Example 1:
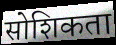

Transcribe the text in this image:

सोशिकता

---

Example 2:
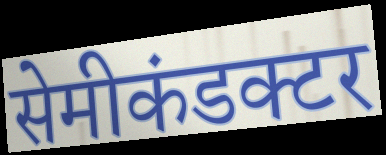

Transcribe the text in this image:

सेमीकंडक्टर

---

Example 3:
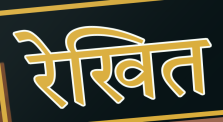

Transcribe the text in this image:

रेखित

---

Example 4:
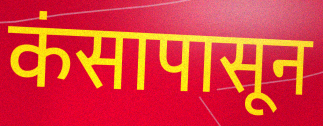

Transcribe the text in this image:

कंसापासून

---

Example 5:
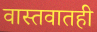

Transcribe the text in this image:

वास्तवातही